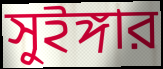
সুইঙ্গার